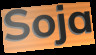
Soja